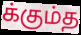
க்கும்த